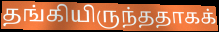
தங்கியிருந்ததாகக்